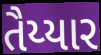
તૈય્યાર